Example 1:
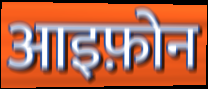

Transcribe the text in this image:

आइफ़ोन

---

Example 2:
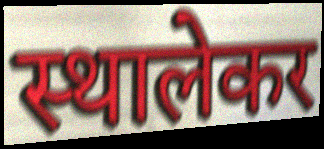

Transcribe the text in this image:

स्थालेकर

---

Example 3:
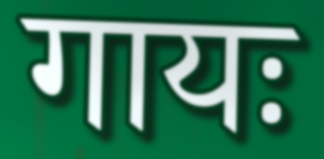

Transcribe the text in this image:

गायः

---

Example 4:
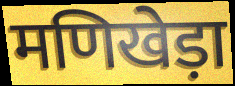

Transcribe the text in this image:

मणिखेड़ा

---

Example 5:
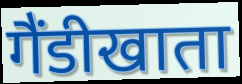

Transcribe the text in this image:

गैंडीखाता